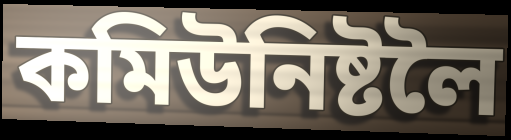
কমিউনিষ্টলৈ